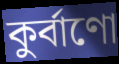
কুর্বাণো